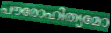
പൗരോഹിത്യമോ